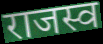
राजस्व